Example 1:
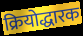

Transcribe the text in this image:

क्रियोद्धारक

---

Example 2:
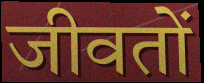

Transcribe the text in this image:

जीवतों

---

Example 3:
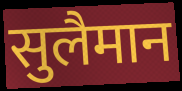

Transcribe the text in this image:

सुलैमान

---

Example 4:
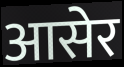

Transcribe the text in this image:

आसेर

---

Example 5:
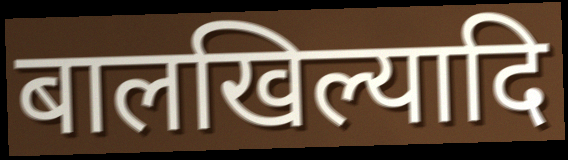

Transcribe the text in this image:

बालखिल्यादि